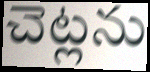
చెట్లను